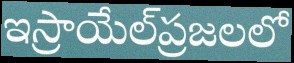
ఇస్రాయేల్‌ప్రజలలో